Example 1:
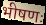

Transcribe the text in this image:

भीषणः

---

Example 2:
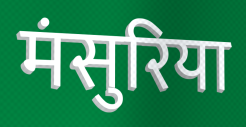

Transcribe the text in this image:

मंसुरिया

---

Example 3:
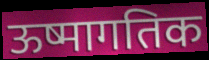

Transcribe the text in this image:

ऊष्मागतिक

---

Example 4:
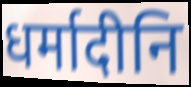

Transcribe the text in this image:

धर्मादीनि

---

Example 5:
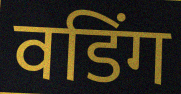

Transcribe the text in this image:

वडिंग